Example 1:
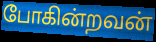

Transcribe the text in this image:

போகின்றவன்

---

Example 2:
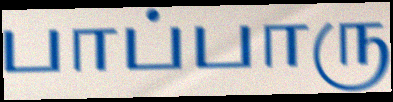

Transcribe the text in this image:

பாப்பாரு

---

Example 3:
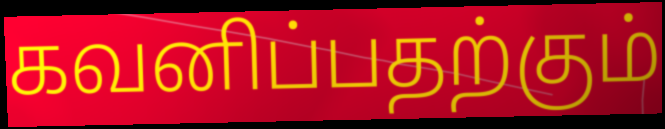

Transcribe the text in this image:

கவனிப்பதற்கும்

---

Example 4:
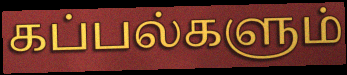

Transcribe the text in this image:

கப்பல்களும்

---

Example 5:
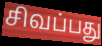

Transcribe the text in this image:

சிவப்பது